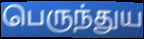
பெருந்துய